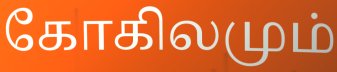
கோகிலமும்